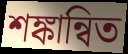
শঙ্কান্বিত